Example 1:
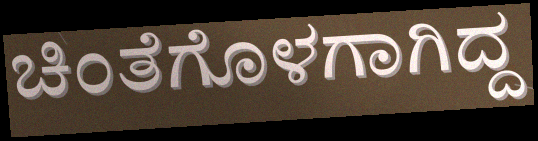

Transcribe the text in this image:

ಚಿಂತೆಗೊಳಗಾಗಿದ್ದ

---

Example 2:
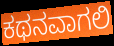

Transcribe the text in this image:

ಕಥನವಾಗಲಿ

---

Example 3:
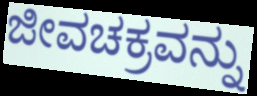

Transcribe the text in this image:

ಜೀವಚಕ್ರವನ್ನು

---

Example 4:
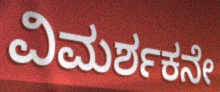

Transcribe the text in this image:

ವಿಮರ್ಶಕನೇ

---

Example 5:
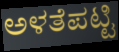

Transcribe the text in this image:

ಅಳತೆಪಟ್ಟಿ